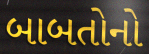
બાબતોનો